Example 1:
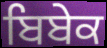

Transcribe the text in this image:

ਬਿਬੇਕ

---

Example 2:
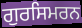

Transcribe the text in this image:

ਗੁਰਸਿਮਰਨ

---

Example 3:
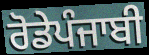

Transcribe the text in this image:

ਰੋਡੇਪੰਜਾਬੀ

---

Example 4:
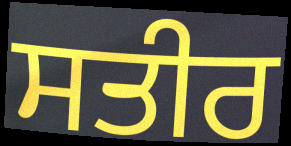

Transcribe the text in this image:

ਸਤੀਰ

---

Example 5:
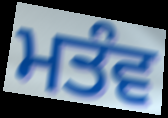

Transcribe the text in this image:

ਮਤੰਵ